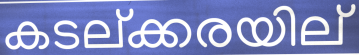
കടല്ക്കരയില്